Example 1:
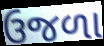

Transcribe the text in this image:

ઉજળા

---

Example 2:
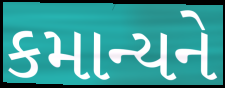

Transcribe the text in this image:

કમાન્યને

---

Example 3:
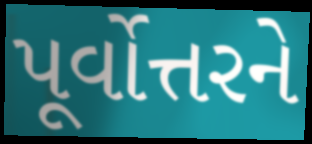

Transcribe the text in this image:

પૂર્વોત્તરને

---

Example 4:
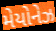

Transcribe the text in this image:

મેયોનેઝ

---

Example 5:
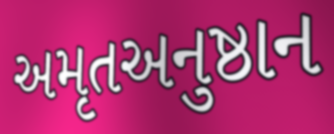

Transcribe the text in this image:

અમૃતઅનુષ્ઠાન